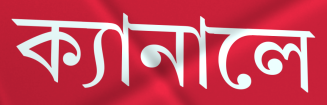
ক্যানালে